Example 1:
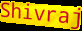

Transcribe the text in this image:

Shivraj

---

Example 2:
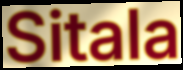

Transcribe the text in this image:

Sitala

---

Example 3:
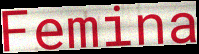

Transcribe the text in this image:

Femina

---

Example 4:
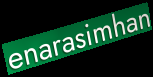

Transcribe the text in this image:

enarasimhan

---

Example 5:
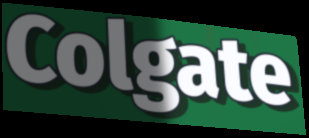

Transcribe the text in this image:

Colgate